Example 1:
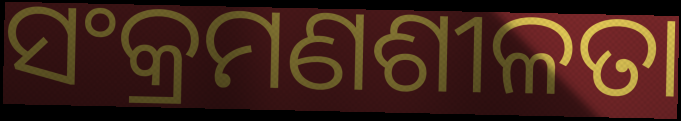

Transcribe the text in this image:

ସଂକ୍ରମଣଶୀଳତା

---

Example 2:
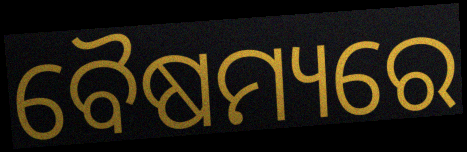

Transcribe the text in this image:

ବୈଷମ୍ୟରେ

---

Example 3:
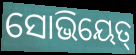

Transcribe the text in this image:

ସୋଭିୟେତ୍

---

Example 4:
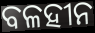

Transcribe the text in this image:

ବଳହୀନ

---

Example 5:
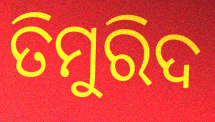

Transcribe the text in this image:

ତିମୁରିଦ